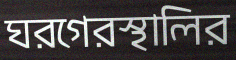
ঘরগেরস্থালির